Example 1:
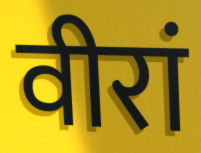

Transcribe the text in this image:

वीरां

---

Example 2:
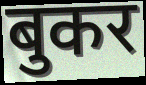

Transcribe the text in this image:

बुकर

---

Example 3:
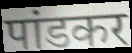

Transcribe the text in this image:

पांडकर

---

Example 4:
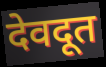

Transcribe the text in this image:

देवदूत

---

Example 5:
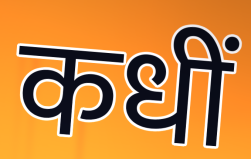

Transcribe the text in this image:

कधीं